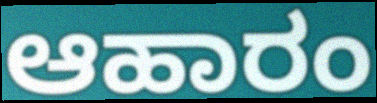
ಆಹಾರಂ